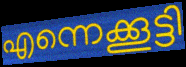
എന്നെക്കൂട്ടി